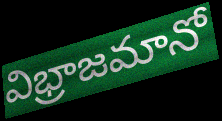
విభ్రాజమానో